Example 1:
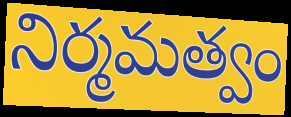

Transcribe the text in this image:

నిర్మమత్వం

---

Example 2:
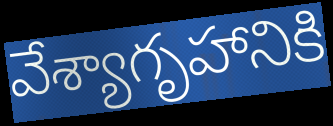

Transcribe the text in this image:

వేశ్యాగృహానికి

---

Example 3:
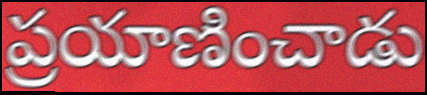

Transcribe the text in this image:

ప్రయాణించాడు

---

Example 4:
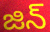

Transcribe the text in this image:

జిన్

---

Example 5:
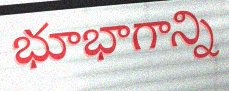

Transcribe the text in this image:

భూభాగాన్ని